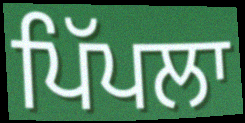
ਪਿੱਪਲਾ